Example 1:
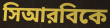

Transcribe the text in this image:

সিআরবিকে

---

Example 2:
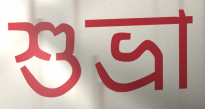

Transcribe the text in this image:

শুভ্রা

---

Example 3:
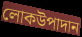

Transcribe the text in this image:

লোকউপাদান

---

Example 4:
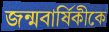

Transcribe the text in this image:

জন্মবার্ষিকীকে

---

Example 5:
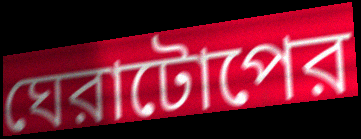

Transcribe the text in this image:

ঘেরাটোপের